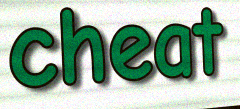
cheat